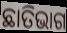
ଛାତିଭାଗ